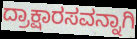
ದ್ರಾಕ್ಷಾರಸವನ್ನಾಗಿ